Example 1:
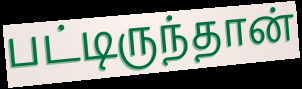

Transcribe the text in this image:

பட்டிருந்தான்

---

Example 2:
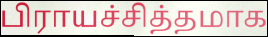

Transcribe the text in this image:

பிராயச்சித்தமாக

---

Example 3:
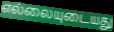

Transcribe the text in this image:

எல்லையுடையது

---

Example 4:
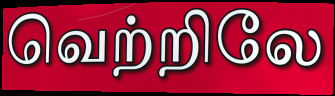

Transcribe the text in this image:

வெற்றிலே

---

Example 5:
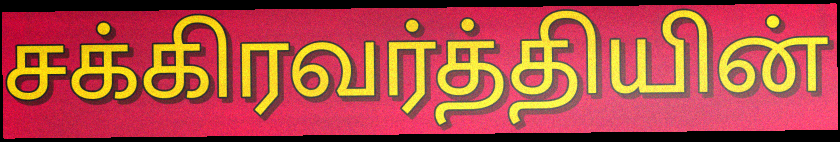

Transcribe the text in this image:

சக்கிரவர்த்தியின்